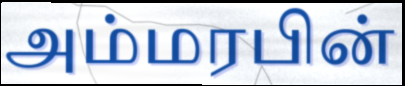
அம்மரபின்